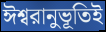
ঈশ্বরানুভূতিই